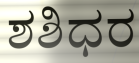
ಶಶಿಧರ